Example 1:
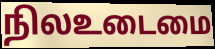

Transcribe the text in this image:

நிலஉடைமை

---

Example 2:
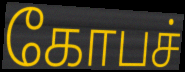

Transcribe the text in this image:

கோபச்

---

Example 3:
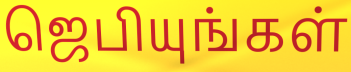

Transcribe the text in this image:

ஜெபியுங்கள்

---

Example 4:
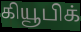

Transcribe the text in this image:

கியூபிக்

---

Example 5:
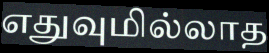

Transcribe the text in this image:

எதுவுமில்லாத